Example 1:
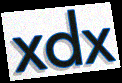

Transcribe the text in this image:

xdx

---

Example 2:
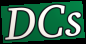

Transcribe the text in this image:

DCs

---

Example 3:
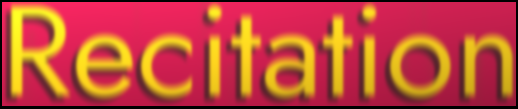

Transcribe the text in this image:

Recitation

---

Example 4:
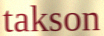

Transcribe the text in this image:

takson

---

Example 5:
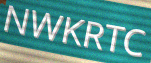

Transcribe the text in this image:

NWKRTC